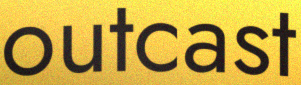
outcast